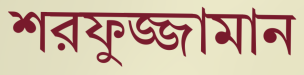
শরফুজ্জামান